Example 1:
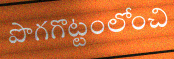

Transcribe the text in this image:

పొగగొట్టంలోంచి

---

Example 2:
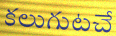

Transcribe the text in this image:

కలుగుటచే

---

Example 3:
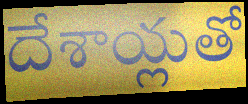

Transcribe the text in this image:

దేశాయ్లతో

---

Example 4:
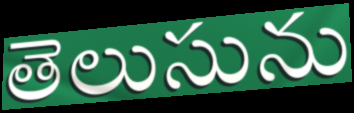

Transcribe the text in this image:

తెలుసును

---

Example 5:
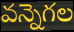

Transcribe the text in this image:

వన్నెగల